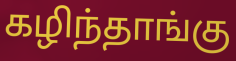
கழிந்தாங்கு